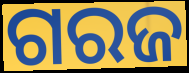
ଗରଜ